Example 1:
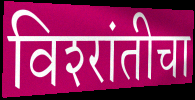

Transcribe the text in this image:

विश्रांतीचा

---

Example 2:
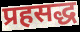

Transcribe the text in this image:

प्रहसद्ध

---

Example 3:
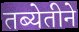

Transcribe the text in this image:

तब्येतीने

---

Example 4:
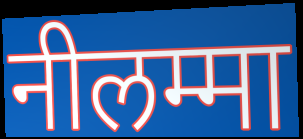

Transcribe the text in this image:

नीलम्मा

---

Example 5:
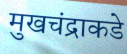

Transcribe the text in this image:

मुखचंद्राकडे